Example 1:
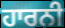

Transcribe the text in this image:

ਹਾਰਨੀ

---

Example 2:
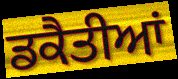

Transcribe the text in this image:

ਡਕੈਤੀਆਂ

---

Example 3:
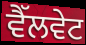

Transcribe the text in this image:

ਵੈੱਲਵੇਟ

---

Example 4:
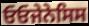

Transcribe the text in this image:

ਓਓਜੇਨੇਸਿਸ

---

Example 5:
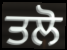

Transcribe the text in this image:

ਤਲੋ